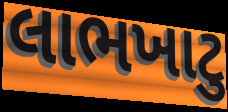
લાભખાટુ